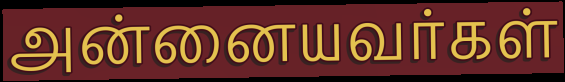
அன்னையவர்கள்